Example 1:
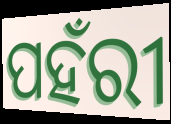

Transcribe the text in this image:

ପହଁରୀ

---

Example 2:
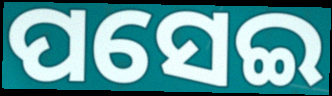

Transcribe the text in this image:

ପସେଇ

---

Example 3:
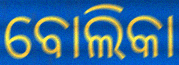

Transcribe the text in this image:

ବୋଲିକା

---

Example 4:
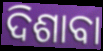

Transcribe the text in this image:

ଦିଶାବା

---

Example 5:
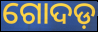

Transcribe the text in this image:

ଗୋଦଡ଼